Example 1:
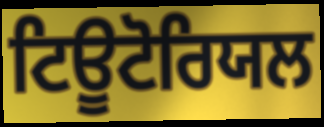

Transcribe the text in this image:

ਟਿਊਟੋਰਿਯਲ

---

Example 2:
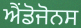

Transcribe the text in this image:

ਐਂਡੋਜੋਨਸ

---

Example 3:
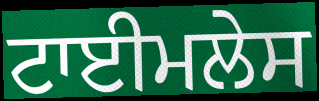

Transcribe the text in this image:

ਟਾਈਮਲੇਸ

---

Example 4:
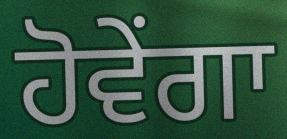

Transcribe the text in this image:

ਹੋਵੇਂਗਾ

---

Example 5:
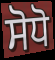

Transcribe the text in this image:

ਸੋਧੋ